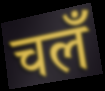
चलँ